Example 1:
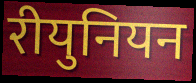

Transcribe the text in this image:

रीयुनियन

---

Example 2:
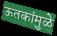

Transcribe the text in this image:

ऊतकांमुळे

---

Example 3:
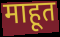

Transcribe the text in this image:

माहूत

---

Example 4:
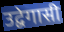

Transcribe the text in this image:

उद्वेगासी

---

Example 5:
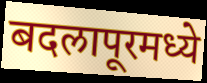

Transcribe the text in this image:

बदलापूरमध्ये